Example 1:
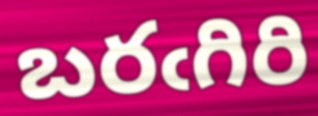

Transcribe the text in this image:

బరఁగిరి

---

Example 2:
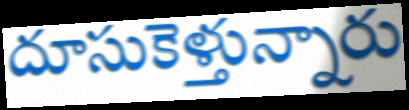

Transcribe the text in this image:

దూసుకెళ్తున్నారు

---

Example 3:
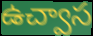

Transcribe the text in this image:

ఉచ్వాస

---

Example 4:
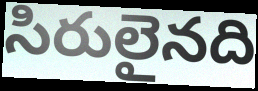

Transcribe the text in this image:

సిరులైనది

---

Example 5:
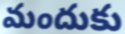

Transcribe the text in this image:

మందుకు